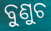
ବୁଣୁଚ